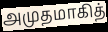
அமுதமாகித்